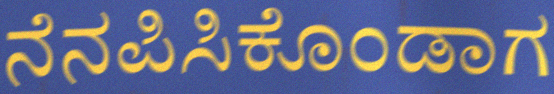
ನೆನಪಿಸಿಕೊಂಡಾಗ